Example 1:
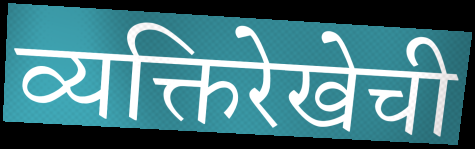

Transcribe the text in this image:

व्यक्तिरेखेची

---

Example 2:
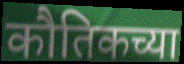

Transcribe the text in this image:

कौतिकच्या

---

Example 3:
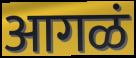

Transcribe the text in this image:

आगळं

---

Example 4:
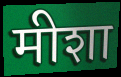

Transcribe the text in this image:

मीशा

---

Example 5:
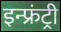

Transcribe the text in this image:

इन्फ्रंट्री